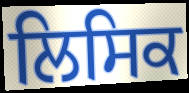
ਲਿਸਿਕ